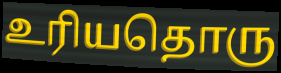
உரியதொரு